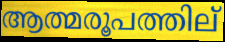
ആത്മരൂപത്തില്